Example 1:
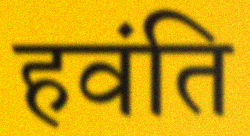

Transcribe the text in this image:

हवंति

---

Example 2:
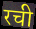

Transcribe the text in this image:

रची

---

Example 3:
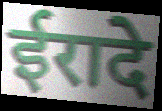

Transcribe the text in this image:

ईरादे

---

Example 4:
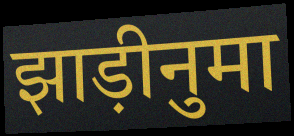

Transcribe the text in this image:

झाड़ीनुमा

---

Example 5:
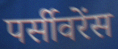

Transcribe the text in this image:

पर्सीवरेंस